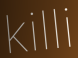
killi